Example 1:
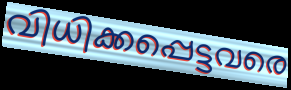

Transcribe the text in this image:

വിധിക്കപ്പെട്ടവരെ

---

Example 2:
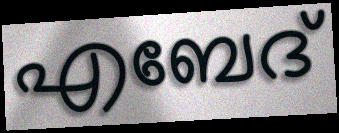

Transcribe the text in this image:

എബേദ്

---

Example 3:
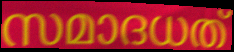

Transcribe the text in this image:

സമാദധത്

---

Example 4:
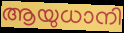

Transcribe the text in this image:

ആയുധാനി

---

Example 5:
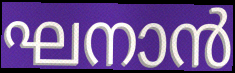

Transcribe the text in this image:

ഘനാൻ